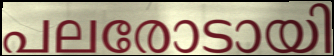
പലരോടായി